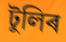
টুলিৰ